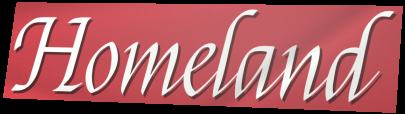
Homeland